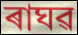
ৰাঘৱ